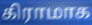
கிராமாக